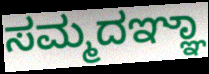
ಸಮ್ಮದಞ್ಞಾ